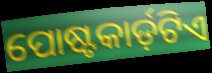
ପୋଷ୍ଟକାର୍ଡ଼ଟିଏ